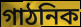
গাঠনিক